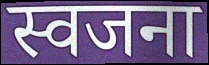
स्वजना